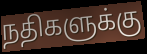
நதிகளுக்கு